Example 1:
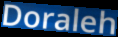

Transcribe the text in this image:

Doraleh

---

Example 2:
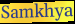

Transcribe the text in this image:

Samkhya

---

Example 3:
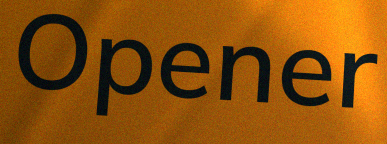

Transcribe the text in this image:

Opener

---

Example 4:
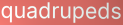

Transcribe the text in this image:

quadrupeds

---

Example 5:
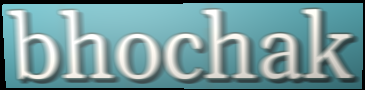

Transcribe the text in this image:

bhochak